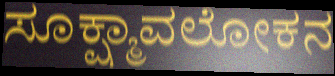
ಸೂಕ್ಷ್ಮಾವಲೋಕನ